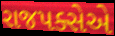
રાજપક્સેએ